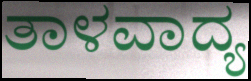
ತಾಳವಾದ್ಯ